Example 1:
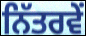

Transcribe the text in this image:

ਨਿੱਤਰਵੇਂ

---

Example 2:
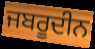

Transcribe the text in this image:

ਜਬਰੂਦੀਨ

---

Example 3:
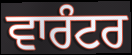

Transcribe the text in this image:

ਵਾਰੰਟਰ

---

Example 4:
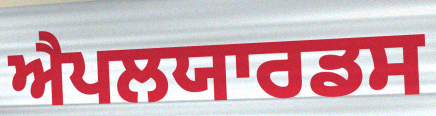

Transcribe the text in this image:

ਐਪਲਯਾਰਡਸ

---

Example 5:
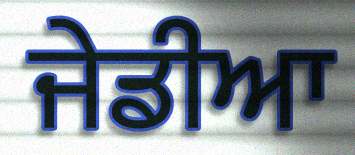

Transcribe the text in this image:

ਜੇਡੀਆ